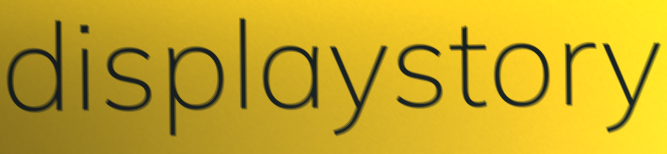
displaystory